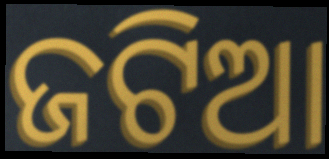
ଜଟିଆ